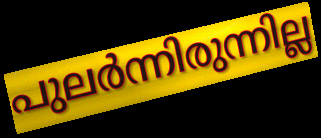
പുലർന്നിരുന്നില്ല